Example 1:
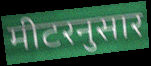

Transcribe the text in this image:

मीटरनुसार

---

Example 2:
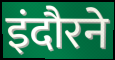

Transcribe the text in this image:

इंदौरने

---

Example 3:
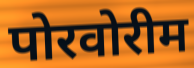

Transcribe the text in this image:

पोरवोरीम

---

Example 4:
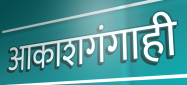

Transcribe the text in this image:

आकाशगंगाही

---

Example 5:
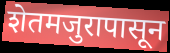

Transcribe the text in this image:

शेतमजुरापासून